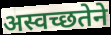
अस्वच्छतेने